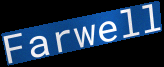
Farwell